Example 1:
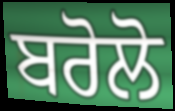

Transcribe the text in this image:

ਬਰੋਲੋ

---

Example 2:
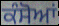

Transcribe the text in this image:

ਕੰਸੋਆਂ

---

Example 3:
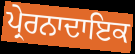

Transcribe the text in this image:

ਪ੍ਰੇਰਨਾਦਾਇਕ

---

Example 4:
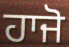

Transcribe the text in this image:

ਹਾਜੋ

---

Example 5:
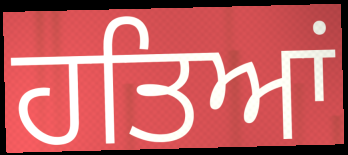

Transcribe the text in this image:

ਹਤਿਆਂ